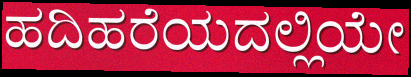
ಹದಿಹರೆಯದಲ್ಲಿಯೇ